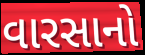
વારસાનો